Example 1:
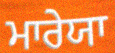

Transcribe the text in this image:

ਮਾਰੇਯਾ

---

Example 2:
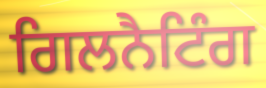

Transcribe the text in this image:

ਗਿਲਨੈਟਿੰਗ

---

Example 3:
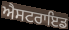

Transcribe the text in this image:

ਐਸਟਰਾਇਡ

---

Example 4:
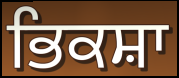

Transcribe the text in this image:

ਭਿਕਸ਼ਾ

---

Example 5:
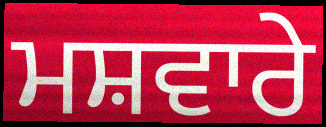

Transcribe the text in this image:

ਮਸ਼ਵਾਰੇ